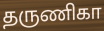
தருணிகா